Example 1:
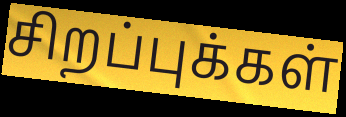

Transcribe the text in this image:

சிறப்புக்கள்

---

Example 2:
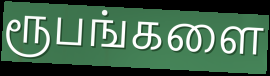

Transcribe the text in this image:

ரூபங்களை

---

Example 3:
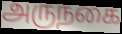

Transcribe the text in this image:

அருநகை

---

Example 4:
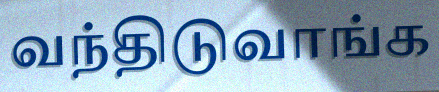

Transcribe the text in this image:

வந்திடுவாங்க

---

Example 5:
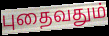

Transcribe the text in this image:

புதைவதும்